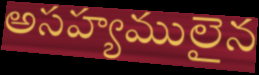
అసహ్యములైన